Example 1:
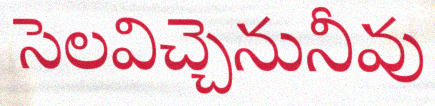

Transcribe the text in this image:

సెలవిచ్చెనునీవు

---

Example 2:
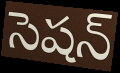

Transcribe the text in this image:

సెషన్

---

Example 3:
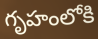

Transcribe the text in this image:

గృహంలోకి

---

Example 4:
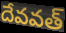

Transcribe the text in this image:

దేవవత్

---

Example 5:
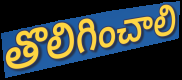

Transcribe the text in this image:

తొలిగించాలి